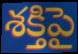
శక్తిపై